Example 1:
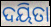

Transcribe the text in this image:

ଦୟିତା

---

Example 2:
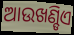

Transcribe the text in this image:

ଆଉଖଣ୍ଡିଏ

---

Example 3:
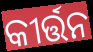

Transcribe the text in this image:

କୀର୍ତ୍ତନ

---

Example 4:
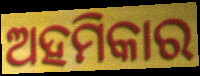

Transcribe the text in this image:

ଅହମିକାର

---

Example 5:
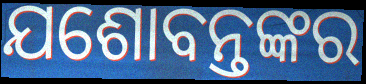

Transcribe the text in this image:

ଯଶୋବନ୍ତଙ୍କର